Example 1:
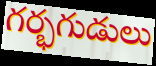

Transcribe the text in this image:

గర్భగుడులు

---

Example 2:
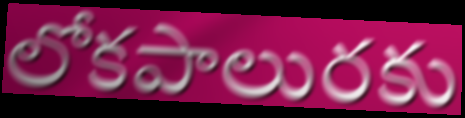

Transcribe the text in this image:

లోకపాలురకు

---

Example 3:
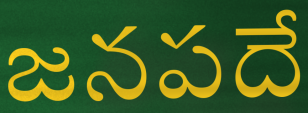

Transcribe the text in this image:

జనపదే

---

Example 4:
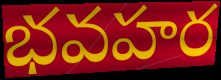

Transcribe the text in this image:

భవహర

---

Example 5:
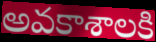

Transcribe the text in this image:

అవకాశాలకి